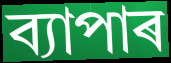
ব্যাপাৰ